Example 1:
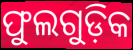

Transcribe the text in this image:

ଫୁଲଗୁଡ଼ିକ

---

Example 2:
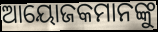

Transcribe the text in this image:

ଆୟୋଜକମାନଙ୍କୁ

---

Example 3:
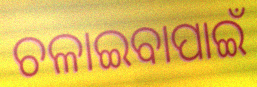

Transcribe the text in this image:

ଚଳାଇବାପାଇଁ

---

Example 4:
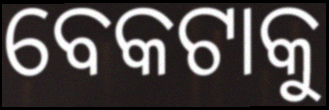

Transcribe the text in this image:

ବେକଟାକୁ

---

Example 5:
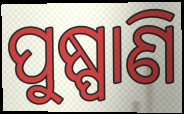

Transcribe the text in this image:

ପୁଷ୍ପାଣି